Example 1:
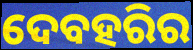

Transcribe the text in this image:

ଦେବହରିର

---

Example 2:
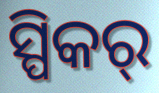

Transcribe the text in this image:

ସ୍ପିକର୍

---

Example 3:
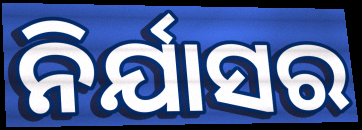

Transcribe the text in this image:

ନିର୍ଯାସର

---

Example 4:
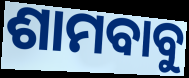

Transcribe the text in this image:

ଶାମବାବୁ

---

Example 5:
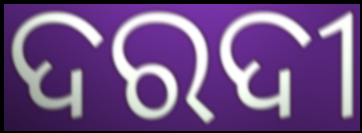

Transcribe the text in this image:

ଦରଦୀ